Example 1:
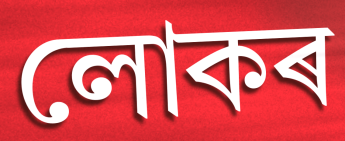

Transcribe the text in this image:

লোকৰ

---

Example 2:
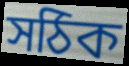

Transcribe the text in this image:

সঠিক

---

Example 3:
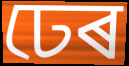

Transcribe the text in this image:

ঢেৰ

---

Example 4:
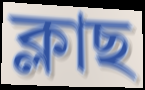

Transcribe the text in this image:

ক্লাছ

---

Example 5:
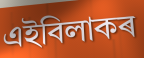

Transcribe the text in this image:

এইবিলাকৰ